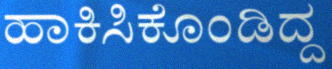
ಹಾಕಿಸಿಕೊಂಡಿದ್ದ